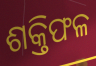
ଶକ୍ତିଫଳ